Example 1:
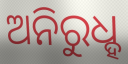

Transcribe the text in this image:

ଅନିରୁଧ୍ହ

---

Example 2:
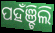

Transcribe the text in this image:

ପହଁଞ୍ଚିଲି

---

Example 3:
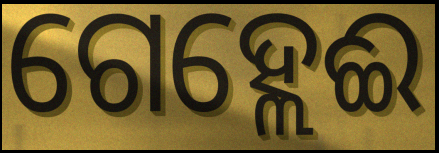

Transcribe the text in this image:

ଗେହ୍ଲେଈ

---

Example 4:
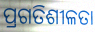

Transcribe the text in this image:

ପ୍ରଗତିଶୀଳତା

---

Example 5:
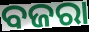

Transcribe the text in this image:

ବଜରା